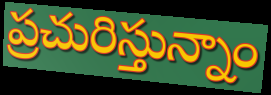
ప్రచురిస్తున్నాం